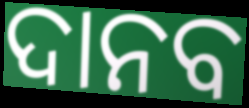
ଦାନବ